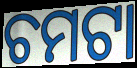
ଚମଟା